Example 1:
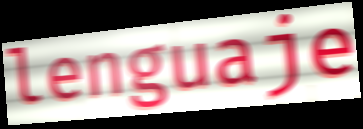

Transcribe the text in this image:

lenguaje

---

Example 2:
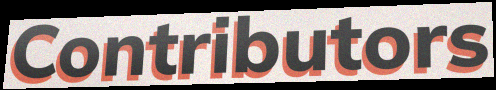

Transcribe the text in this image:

Contributors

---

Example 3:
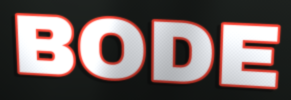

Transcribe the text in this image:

BODE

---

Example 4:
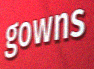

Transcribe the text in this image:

gowns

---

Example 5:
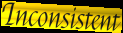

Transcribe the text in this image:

Inconsistent